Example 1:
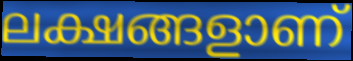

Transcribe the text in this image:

ലക്ഷങ്ങളാണ്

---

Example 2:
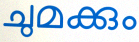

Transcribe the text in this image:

ചുമക്കും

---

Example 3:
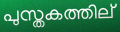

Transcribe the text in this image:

പുസ്തകത്തില്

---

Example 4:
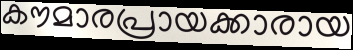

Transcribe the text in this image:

കൗമാരപ്രായക്കാരായ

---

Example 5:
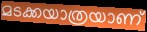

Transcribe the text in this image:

മടക്കയാത്രയാണ്